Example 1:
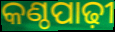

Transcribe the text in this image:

କଣ୍ଠପାଢ଼ୀ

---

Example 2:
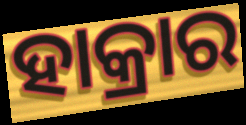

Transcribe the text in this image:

ହାକ୍ରାର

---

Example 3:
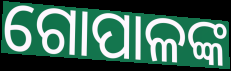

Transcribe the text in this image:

ଗୋପାଳଙ୍କ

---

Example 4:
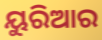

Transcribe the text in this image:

ୟୁରିଆର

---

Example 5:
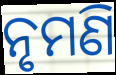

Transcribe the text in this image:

ନୃମଣି